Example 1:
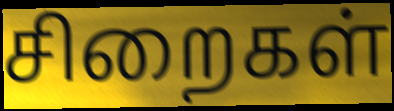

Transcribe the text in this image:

சிறைகள்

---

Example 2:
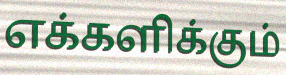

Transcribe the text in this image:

எக்களிக்கும்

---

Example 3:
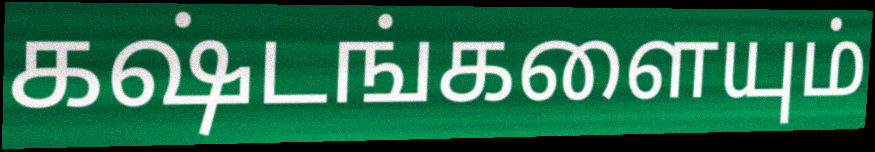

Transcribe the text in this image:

கஷ்டங்களையும்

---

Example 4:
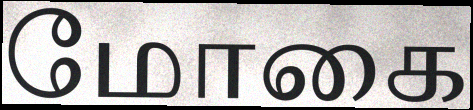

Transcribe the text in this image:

மோகை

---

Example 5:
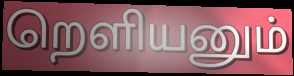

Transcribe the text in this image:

றெளியனும்